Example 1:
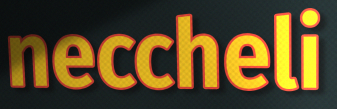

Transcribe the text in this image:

neccheli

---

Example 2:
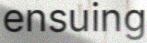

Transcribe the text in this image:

ensuing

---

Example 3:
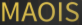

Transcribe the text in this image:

MAOIS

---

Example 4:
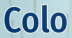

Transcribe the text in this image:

Colo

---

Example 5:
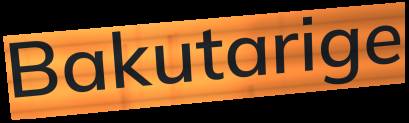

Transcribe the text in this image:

Bakutarige